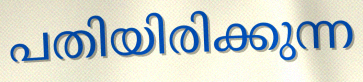
പതിയിരിക്കുന്ന